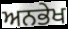
ਅਨਭੇਖ